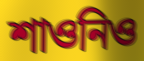
শাওনিও